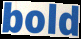
bold